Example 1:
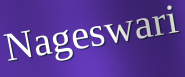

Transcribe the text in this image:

Nageswari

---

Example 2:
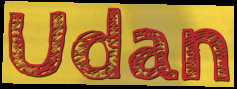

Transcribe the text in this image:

Udan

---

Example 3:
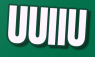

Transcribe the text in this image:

UUIIU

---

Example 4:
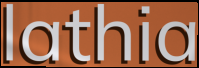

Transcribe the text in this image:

lathia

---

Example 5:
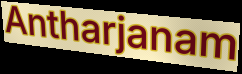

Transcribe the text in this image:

Antharjanam